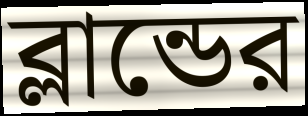
ব্লান্ডের